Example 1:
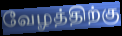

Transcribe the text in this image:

வேழத்திற்கு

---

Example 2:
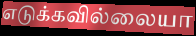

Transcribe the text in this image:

எடுக்கவில்லையா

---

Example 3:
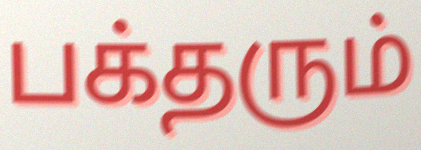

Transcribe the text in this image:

பக்தரும்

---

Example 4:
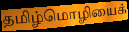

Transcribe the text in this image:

தமிழ்மொழியைக்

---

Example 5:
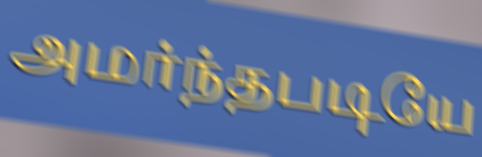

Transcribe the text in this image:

அமர்ந்தபடியே